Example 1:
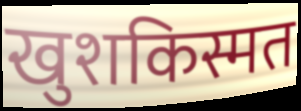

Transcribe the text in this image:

खुशकिस्मत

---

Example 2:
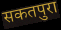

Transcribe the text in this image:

सकतपुरा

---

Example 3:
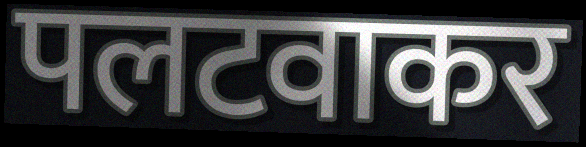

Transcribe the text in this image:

पलटवाकर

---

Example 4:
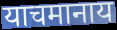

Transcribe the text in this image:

याचमानाय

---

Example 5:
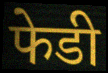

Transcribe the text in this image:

फेडी